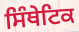
ਸਿੰਥੇਟਿਕ